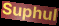
Suphul